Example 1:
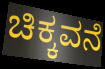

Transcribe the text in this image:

ಚಿಕ್ಕವನೆ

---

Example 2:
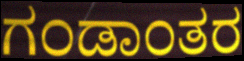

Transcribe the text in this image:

ಗಂಡಾಂತರ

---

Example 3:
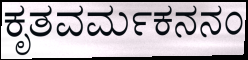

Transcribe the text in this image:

ಕೃತವರ್ಮಕನನಂ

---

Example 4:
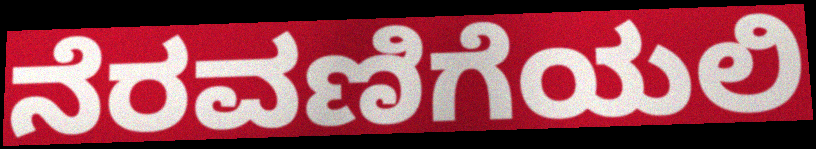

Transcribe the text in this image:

ನೆರವಣಿಗೆಯಲಿ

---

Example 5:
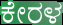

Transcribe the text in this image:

ಕೇರಳ